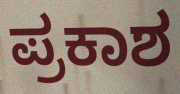
ಪ್ರಕಾಶ